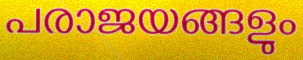
പരാജയങ്ങളും